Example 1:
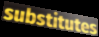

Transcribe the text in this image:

substitutes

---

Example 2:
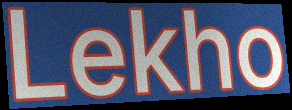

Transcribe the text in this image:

Lekho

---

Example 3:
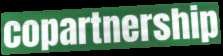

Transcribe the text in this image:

copartnership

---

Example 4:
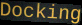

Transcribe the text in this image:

Docking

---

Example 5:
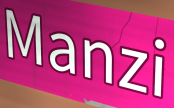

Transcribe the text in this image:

Manzi